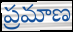
ప్రమాణ